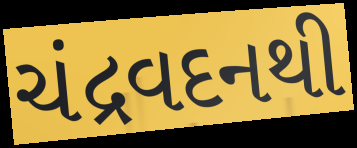
ચંદ્રવદનથી